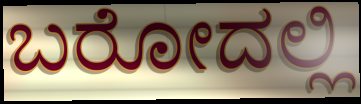
ಬರೋದಲ್ಲಿ